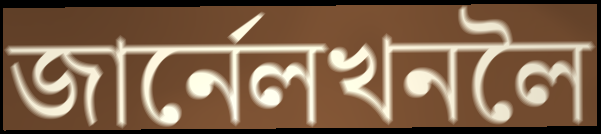
জাৰ্নেলখনলৈ